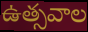
ఉత్సవాల